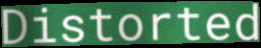
Distorted